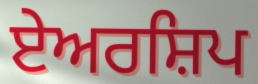
ਏਅਰਸ਼ਿਪ